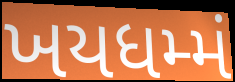
ખયધમ્મં